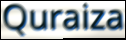
Quraiza